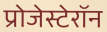
प्रोजेस्टेरॉन